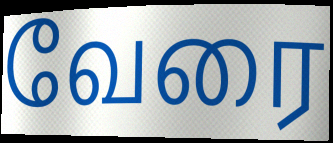
வேரை